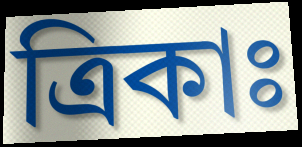
ত্রিকাঃ